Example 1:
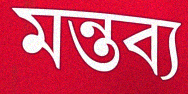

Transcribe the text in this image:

মন্তব্য়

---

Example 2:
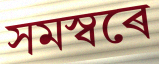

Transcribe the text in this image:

সমস্বৰে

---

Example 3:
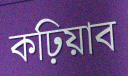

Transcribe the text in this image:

কঢ়িয়াব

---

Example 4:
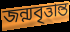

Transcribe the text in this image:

জন্মবৃত্তান্ত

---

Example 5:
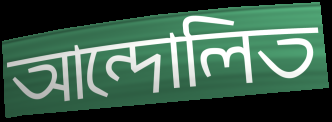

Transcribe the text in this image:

আন্দোলিত